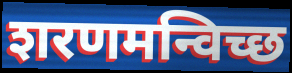
शरणमन्विच्छ